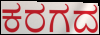
ಕರಗದ